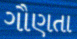
ગૌણતા